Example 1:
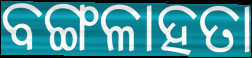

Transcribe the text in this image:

ବଙ୍ଗଳାହତା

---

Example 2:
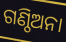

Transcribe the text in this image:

ଗଣ୍ଠିଅନା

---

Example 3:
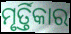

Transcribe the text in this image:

ମୃର୍ତ୍ତିକାର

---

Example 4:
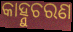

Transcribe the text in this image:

କାହ୍ନୁଚରଣ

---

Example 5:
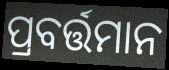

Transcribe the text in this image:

ପ୍ରବର୍ତ୍ତମାନ